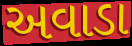
અવાડા